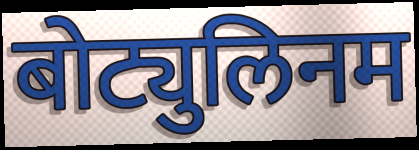
बोट्युलिनम